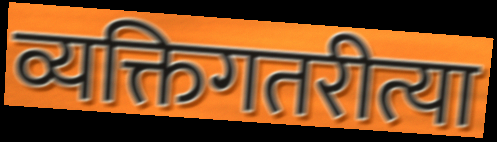
व्यक्तिगतरीत्या